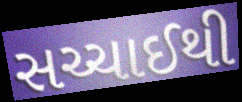
સચ્ચાઈથી